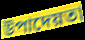
উপাদেয়তা